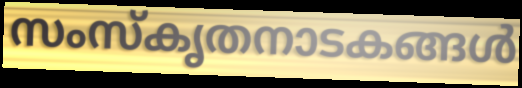
സംസ്കൃതനാടകങ്ങൾ